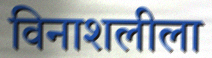
विनाशलीला